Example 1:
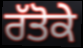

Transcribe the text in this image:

ਰੱਤੋਕੇ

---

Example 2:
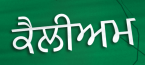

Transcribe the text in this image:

ਕੈਲੀਅਮ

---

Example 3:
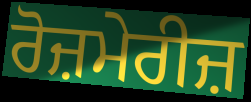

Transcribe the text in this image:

ਰੋਜ਼ਮੇਰੀਜ਼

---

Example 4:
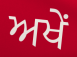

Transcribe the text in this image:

ਅਖੇਂ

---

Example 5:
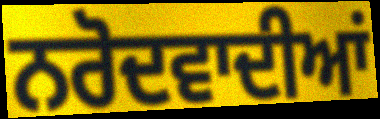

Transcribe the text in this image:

ਨਰੋਦਵਾਦੀਆਂ